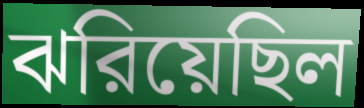
ঝরিয়েছিল